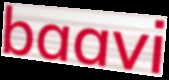
baavi